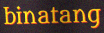
binatang